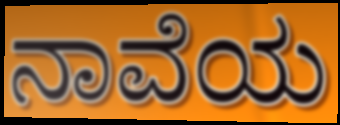
ನಾವೆಯ